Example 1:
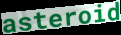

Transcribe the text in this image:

asteroid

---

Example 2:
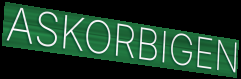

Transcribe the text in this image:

ASKORBIGEN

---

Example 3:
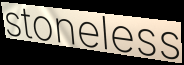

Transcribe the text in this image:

stoneless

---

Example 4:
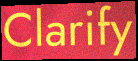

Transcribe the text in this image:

Clarify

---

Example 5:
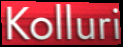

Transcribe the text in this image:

Kolluri